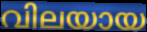
വിലയായ